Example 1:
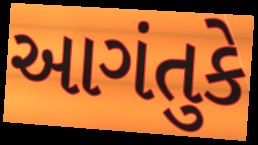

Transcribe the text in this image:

આગંતુકે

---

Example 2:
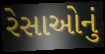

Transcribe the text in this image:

રેસાઓનું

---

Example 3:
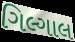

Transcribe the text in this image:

ગિલ્ગાલ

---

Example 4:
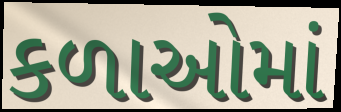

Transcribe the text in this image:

કળાઓમાં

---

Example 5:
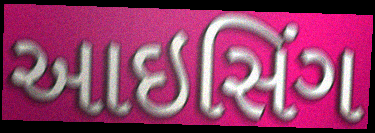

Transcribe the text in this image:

આઇસિંગ